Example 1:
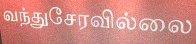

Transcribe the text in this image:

வந்துசேரவில்லை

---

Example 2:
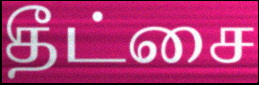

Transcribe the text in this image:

தீட்சை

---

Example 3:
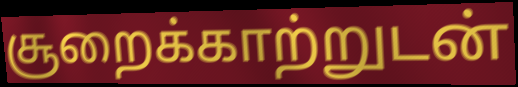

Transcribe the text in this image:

சூறைக்காற்றுடன்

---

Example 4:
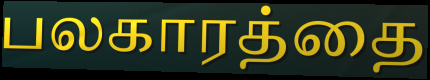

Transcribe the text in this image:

பலகாரத்தை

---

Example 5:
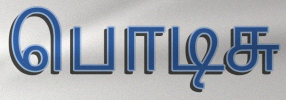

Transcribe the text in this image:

பொடிசு